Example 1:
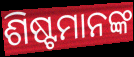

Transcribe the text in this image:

ଶିଷ୍ଟମାନଙ୍କ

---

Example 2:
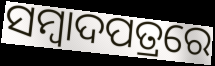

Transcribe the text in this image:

ସମ୍ୱାଦପତ୍ରରେ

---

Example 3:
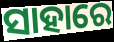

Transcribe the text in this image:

ସାହାରେ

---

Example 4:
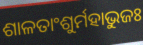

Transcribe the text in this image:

ଶାଳତାଂଶୁର୍ମହାଭୁଜଃ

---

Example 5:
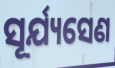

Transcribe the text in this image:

ସୂର୍ଯ୍ୟସେଣ